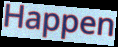
Happen